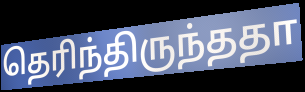
தெரிந்திருந்ததா